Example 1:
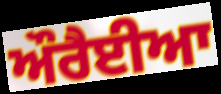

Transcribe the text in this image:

ਔਰੈਈਆ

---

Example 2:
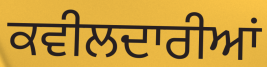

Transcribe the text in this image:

ਕਵੀਲਦਾਰੀਆਂ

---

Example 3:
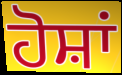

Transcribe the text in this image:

ਹੋਸ਼ਾਂ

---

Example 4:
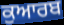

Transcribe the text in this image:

ਕੁਆਰਬ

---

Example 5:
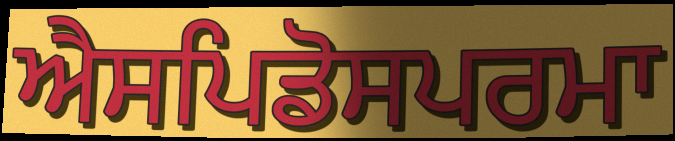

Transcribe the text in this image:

ਐਸਪਿਡੋਸਪਰਮਾ